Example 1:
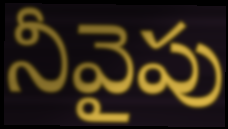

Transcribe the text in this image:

నీవైపు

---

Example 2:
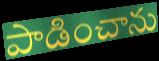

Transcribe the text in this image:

పాడించాను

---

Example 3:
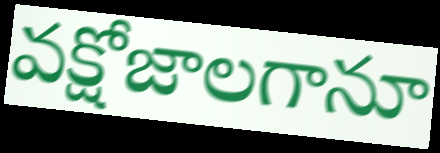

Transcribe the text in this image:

వక్షోజాలగానూ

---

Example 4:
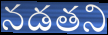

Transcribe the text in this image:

నడతని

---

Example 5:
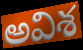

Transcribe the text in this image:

అవిశ